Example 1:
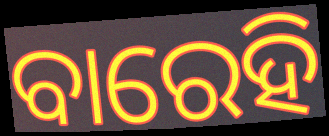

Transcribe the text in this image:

ବାରେହି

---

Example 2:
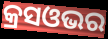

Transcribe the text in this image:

କ୍ରସଓଭର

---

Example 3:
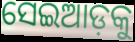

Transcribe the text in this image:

ସେଇଆଡ଼କୁ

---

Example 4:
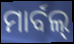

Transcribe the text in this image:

ମାର୍ବଲ୍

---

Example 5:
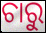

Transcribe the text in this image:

ଚାରୁ